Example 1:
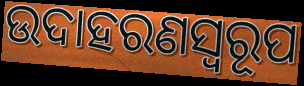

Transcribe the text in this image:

ଉଦାହରଣସ୍ୱରୂପ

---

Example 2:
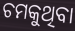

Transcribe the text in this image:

ଚମକୁଥିବା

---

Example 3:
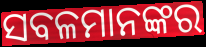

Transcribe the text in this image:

ସବଳମାନଙ୍କର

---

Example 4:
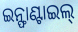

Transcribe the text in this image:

ଇନ୍ଫାଣ୍ଟାଇଲ୍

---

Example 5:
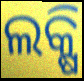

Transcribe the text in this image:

ଲକ୍ଷି